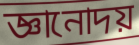
জ্ঞানোদয়